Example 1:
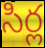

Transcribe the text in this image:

సిర్ల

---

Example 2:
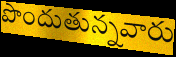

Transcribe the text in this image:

పొందుతున్నవారు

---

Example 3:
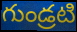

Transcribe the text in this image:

గుండ్రటి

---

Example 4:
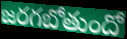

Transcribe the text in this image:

జరగబోతుందో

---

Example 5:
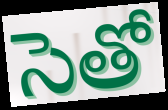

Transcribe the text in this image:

సెతో